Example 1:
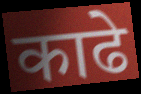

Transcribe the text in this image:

काढे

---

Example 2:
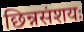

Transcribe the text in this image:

छिन्नसंशयः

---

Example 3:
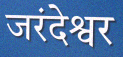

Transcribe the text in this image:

जरंदेश्वर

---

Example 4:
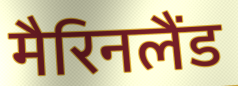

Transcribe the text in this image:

मैरिनलैंड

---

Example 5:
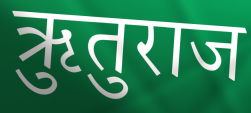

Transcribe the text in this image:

ऋुतुराज